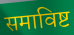
समाविष्ट